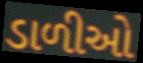
ડાળીઓ